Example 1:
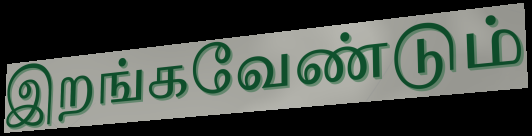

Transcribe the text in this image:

இறங்கவேண்டும்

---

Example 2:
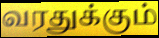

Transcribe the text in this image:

வரதுக்கும்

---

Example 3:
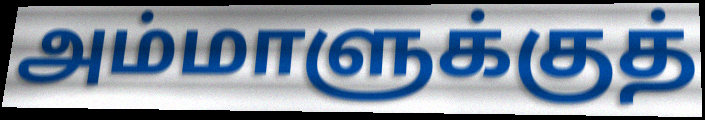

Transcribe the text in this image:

அம்மாளுக்குத்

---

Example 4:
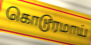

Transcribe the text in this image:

கொடூரமாய்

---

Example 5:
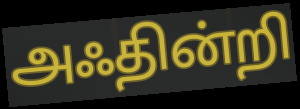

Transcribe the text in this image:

அஃதின்றி